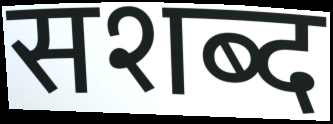
सशब्द